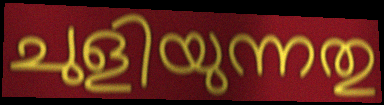
ചുളിയുന്നതു